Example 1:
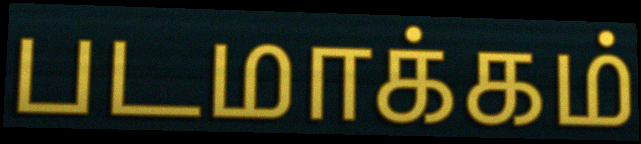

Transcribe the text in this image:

படமாக்கம்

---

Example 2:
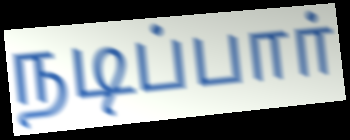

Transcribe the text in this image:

நடிப்பார்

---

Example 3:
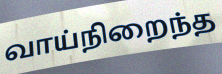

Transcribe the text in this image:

வாய்நிறைந்த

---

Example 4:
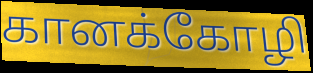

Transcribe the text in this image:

கானக்கோழி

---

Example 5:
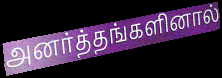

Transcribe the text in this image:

அனர்த்தங்களினால்